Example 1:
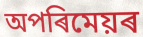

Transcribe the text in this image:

অপৰিমেয়ৰ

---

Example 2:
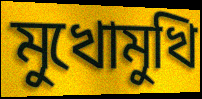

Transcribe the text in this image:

মুখোমুখি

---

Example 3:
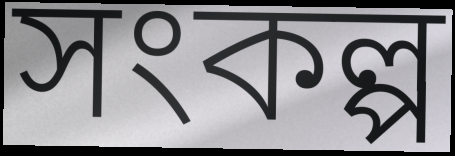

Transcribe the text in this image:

সংকল্প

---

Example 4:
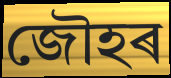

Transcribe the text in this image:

জৌহৰ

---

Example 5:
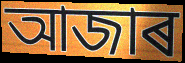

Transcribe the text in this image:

আজাৰ